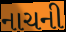
નાચની